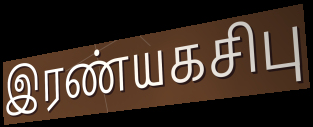
இரண்யகசிபு